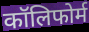
कॉलिफोर्म